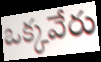
ఒక్కవేరు